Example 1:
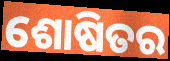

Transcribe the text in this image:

ଶୋଷିତର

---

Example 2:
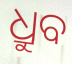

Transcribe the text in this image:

ଧ୍ରୁବ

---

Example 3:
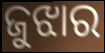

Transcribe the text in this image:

ଜୁଝାର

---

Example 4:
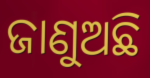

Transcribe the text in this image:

ଜାଣୁଅଛି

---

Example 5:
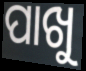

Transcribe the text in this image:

ପାଖୁ